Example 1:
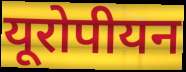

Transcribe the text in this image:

यूरोपीयन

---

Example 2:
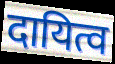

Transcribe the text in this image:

दायित्व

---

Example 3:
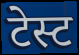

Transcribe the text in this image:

टेस्ट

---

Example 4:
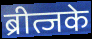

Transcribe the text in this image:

ब्रीत्जके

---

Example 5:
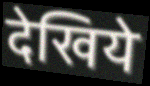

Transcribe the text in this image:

देखिये